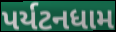
પર્યટનધામ